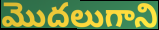
మొదలుగాని